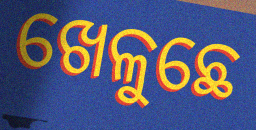
ଖେଳୁଛେ